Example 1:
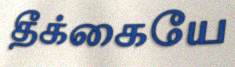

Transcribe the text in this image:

தீக்கையே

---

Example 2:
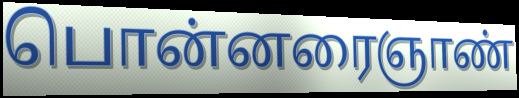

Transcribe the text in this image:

பொன்னரைஞாண்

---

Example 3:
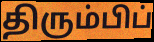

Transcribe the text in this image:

திரும்பிப்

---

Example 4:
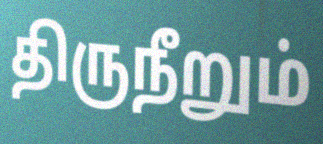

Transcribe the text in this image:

திருநீறும்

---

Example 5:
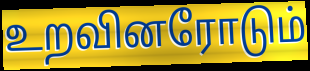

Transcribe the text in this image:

உறவினரோடும்